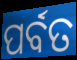
ପର୍ବତ